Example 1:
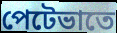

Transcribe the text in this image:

পেটেভাতে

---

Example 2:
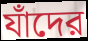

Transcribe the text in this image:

যাঁদের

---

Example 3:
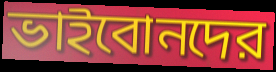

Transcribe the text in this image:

ভাইবোনদের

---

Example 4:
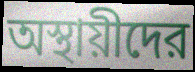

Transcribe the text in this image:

অস্থায়ীদের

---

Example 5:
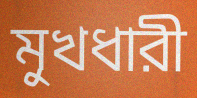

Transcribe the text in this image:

মুখধারী